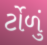
ર્ટોળું